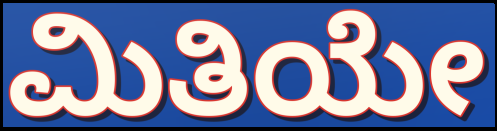
ಮಿತಿಯೇ